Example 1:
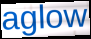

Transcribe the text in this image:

aglow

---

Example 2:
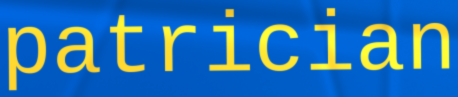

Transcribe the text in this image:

patrician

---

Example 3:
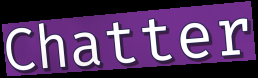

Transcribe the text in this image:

Chatter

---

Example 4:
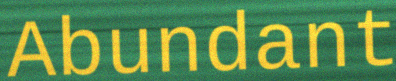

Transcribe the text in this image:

Abundant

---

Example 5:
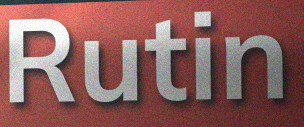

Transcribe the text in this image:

Rutin